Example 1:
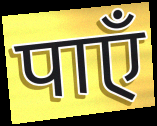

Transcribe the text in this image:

पाएँ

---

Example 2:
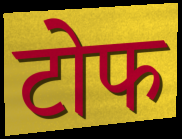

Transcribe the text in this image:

टोफ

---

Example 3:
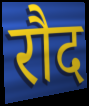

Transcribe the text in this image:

रौद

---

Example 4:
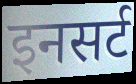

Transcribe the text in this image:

इनसर्ट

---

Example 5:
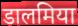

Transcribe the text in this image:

डालमिया